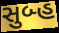
સુબ્હ